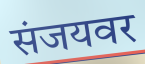
संजयवर